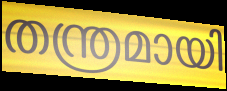
തന്ത്രമായി